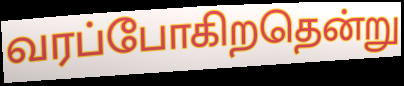
வரப்போகிறதென்று